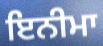
ਇਨੀਮਾ